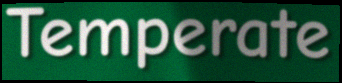
Temperate